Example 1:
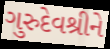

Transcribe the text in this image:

ગુરુદેવશ્રીને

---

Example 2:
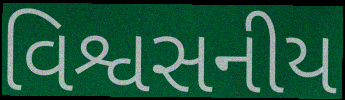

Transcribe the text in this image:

વિશ્વસનીય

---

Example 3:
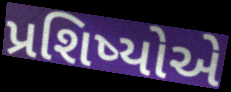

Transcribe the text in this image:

પ્રશિષ્યોએ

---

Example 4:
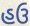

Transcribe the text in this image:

હઉ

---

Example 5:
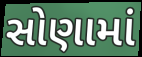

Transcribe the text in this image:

સોણામાં